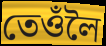
তেওঁলৈ